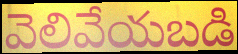
వెలివేయబడి